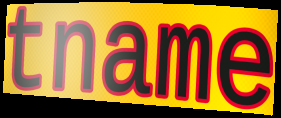
tname